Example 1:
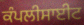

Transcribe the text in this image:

ਕੰਪਲੀਸਾਈਟ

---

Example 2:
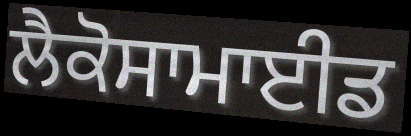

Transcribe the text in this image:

ਲੈਕੋਸਾਮਾਈਡ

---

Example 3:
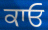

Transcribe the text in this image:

ਕਾਓ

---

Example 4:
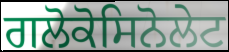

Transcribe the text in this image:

ਗਲੋਕੋਸਿਨੋਲੇਟ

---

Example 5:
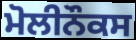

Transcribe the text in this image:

ਮੋਲੀਨੌਕਸ